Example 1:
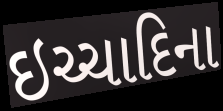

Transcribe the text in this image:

ઇચ્ચાદિના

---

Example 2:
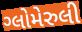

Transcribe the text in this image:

ગ્લોમેરુલી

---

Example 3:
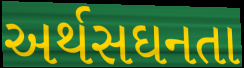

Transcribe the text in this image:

અર્થસઘનતા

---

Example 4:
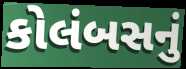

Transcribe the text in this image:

કોલંબસનું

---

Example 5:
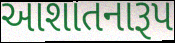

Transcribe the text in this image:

આશાતનારૂપ